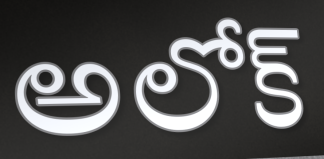
అలోక్